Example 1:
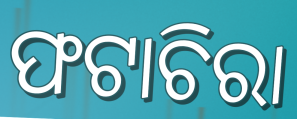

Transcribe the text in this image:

ଫଟାଚିରା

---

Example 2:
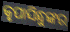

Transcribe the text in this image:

କୃପାସିନ୍ଧୁଙ୍କର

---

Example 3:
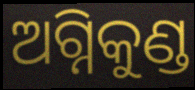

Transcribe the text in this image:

ଅଗ୍ନିକୁଣ୍ଡ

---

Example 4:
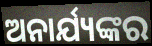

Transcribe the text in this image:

ଅନାର୍ଯ୍ୟଙ୍କର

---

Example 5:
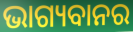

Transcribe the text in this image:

ଭାଗ୍ୟବାନର